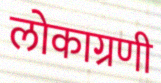
लोकाग्रणी